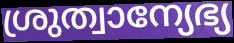
ശ്രുത്വാന്യേഭ്യ